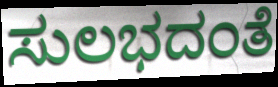
ಸುಲಭದಂತೆ